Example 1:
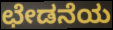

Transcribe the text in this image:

ಛೇಡನೆಯ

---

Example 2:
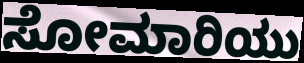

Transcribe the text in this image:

ಸೋಮಾರಿಯು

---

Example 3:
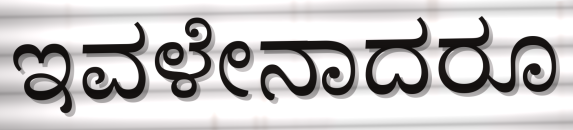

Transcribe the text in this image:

ಇವಳೇನಾದರೂ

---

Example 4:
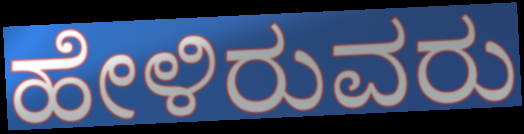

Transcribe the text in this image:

ಹೇಳಿರುವರು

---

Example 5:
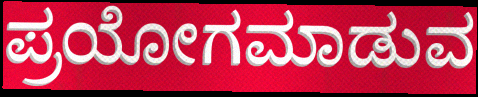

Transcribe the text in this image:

ಪ್ರಯೋಗಮಾಡುವ